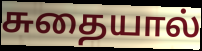
சுதையால்